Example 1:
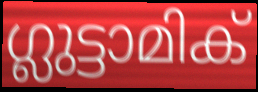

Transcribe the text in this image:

ഗ്ലുട്ടാമിക്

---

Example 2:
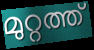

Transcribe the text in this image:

മുറ്റത്ത്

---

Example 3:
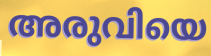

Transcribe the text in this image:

അരുവിയെ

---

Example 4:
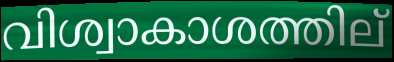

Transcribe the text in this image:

വിശ്വാകാശത്തില്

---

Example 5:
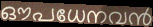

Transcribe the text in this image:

ഔപധേനവൻ